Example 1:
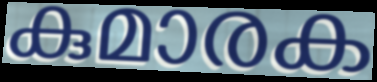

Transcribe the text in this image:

കുമാരക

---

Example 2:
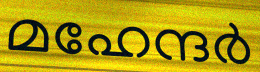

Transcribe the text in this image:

മഹേന്ദർ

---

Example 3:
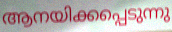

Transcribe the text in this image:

ആനയിക്കപ്പെടുന്നു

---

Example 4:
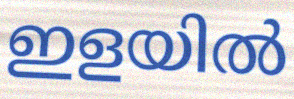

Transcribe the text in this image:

ഇളയിൽ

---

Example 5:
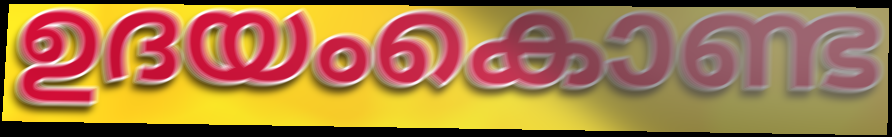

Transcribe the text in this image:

ഉദയംകൊണ്ട